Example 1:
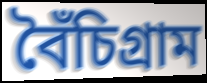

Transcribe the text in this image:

বৈঁচিগ্রাম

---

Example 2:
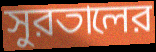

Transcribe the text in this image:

সুরতালের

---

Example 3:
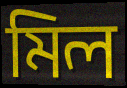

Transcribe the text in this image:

মিল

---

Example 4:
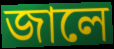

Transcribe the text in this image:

জালে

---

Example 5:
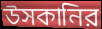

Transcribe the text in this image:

উসকানির